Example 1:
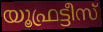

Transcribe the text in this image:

യൂഫ്രട്ടീസ്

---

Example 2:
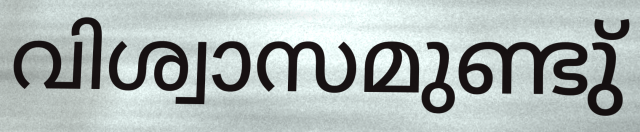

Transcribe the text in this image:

വിശ്വാസമുണ്ടു്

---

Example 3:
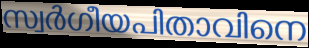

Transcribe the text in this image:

സ്വർഗീയപിതാവിനെ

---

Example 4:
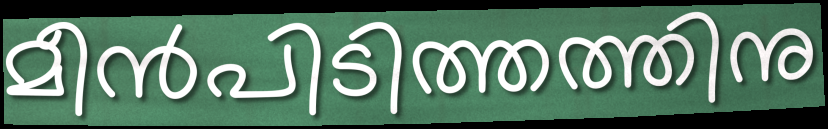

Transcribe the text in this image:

മീൻപിടിത്തത്തിനു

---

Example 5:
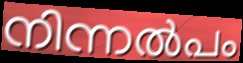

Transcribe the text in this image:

നിന്നൽപം